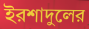
ইরশাদুলের